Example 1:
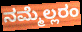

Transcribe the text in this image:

ನಮ್ಮೆಲ್ಲರಂ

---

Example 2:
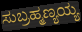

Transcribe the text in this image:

ಸುಬ್ರಹ್ಮಣ್ಯಯ್ಯ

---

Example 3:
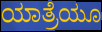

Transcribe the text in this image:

ಯಾತ್ರೆಯೂ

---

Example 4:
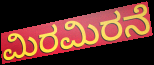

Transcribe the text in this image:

ಮಿರಮಿರನೆ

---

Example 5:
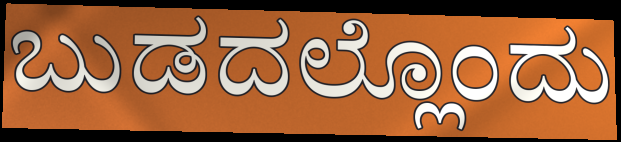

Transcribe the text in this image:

ಬುಡದಲ್ಲೊಂದು